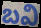
బవి